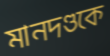
মানদণ্ডকে